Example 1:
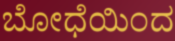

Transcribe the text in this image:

ಬೋಧೆಯಿಂದ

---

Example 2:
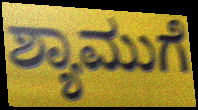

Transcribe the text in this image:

ಶ್ಯಾಮುಗೆ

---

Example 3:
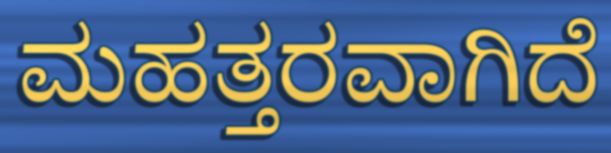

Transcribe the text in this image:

ಮಹತ್ತರವಾಗಿದೆ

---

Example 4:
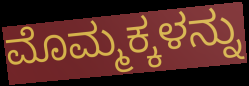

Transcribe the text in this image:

ಮೊಮ್ಮಕ್ಕಳನ್ನು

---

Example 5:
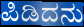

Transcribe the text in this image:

ಪಿಡಿದನು